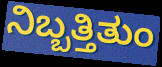
ನಿಬ್ಬತ್ತಿತುಂ